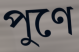
পুণে